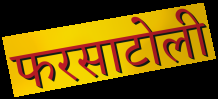
फरसाटोली